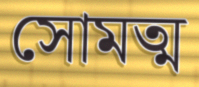
সোমত্ম